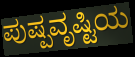
ಪುಷ್ಪವೃಷ್ಟಿಯ